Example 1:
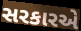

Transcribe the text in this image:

સરકારએ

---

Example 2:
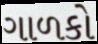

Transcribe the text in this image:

ગાળકો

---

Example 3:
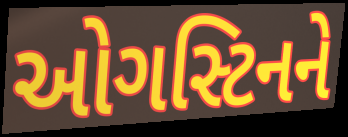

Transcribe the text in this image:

ઓગસ્ટિનને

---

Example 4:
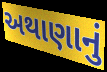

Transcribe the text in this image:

અથાણાનું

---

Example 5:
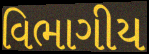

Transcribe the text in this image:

વિભાગીય